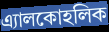
এ্যালকোহলিক